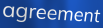
agreement